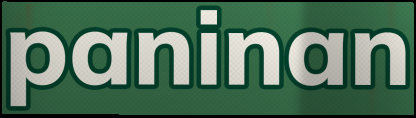
paninan